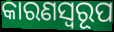
କାରଣସ୍ୱରୂପ